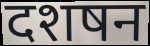
दशषन